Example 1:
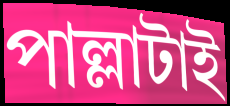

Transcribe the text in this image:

পাল্লাটাই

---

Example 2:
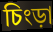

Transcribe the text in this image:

চিংড়া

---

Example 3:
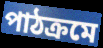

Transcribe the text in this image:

পাঠক্রমে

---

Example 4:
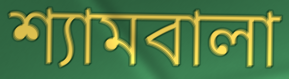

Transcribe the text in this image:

শ্যামবালা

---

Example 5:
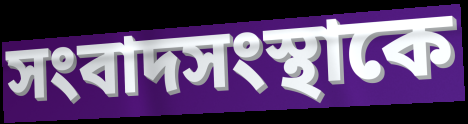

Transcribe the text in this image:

সংবাদসংস্থাকে